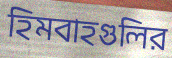
হিমবাহগুলির